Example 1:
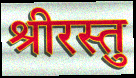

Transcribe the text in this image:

श्रीरस्तु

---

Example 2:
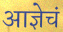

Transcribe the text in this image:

आज्ञेचं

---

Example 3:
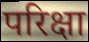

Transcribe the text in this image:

परिक्षा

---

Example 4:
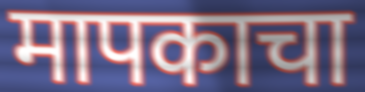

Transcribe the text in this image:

मापकाचा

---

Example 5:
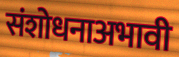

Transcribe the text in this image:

संशोधनाअभावी